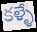
కళ్ళే